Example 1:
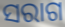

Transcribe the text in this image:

ସରାଗ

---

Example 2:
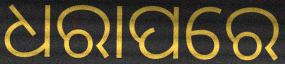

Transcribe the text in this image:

ଧରାପରେ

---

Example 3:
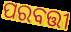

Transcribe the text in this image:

ପରବତ୍ତୀ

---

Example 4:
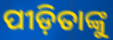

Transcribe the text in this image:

ପୀଡ଼ିତାଙ୍କୁ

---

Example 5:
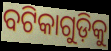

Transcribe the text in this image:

ବଟିକାଗୁଡ଼ିକୁ